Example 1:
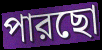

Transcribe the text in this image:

পারছো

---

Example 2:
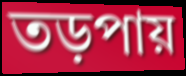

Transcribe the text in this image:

তড়পায়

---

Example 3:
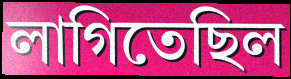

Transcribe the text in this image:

লাগিতেছিল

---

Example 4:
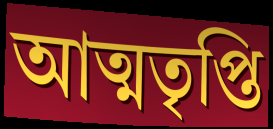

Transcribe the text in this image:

আত্মতৃপ্তি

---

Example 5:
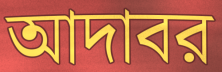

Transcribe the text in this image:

আদাবর